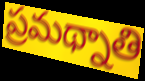
ప్రమథ్నాతి